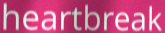
heartbreak